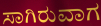
ಸಾಗಿರುವಾಗ